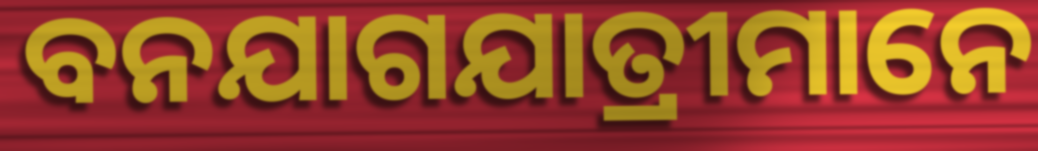
ବନଯାଗଯାତ୍ରୀମାନେ